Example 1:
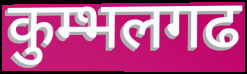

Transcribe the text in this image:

कुम्भलगढ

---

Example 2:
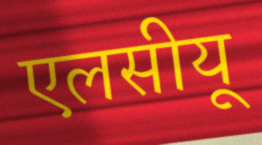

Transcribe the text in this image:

एलसीयू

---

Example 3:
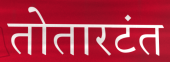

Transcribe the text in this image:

तोतारटंत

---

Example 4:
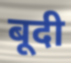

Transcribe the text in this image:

बूदी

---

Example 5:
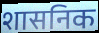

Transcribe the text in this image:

शासनिक